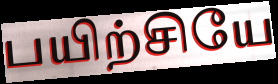
பயிற்சியே